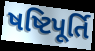
ષષ્ટિપૂર્તિ